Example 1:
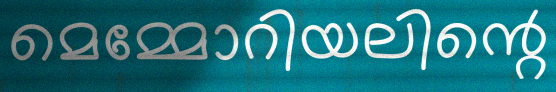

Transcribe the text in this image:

മെമ്മോറിയലിന്റെ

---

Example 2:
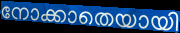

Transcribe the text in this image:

നോക്കാതെയായി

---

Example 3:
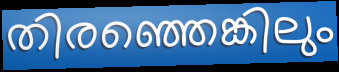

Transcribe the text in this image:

തിരഞ്ഞെങ്കിലും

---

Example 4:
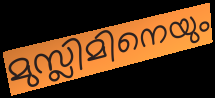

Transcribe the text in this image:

മുസ്ലിമിനെയും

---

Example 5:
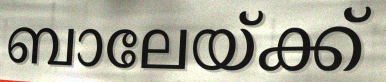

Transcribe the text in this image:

ബാലേയ്ക്ക്